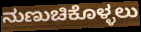
ನುಣುಚಿಕೊಳ್ಳಲು